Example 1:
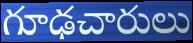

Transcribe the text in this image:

గూఢచారులు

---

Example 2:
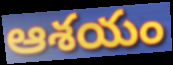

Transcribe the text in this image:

ఆశయం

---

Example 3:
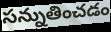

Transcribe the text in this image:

సన్నుతించడం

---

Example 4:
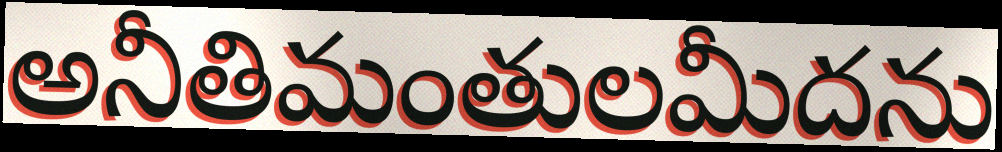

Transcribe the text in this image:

అనీతిమంతులమీదను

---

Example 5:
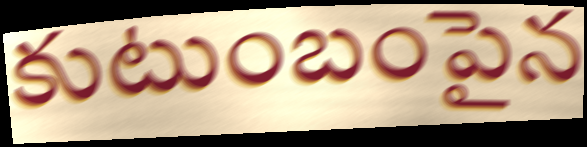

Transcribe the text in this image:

కుటుంబంపైన